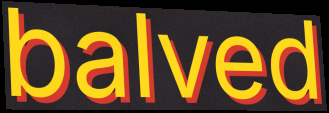
balved